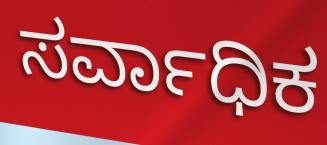
ಸರ್ವಾಧಿಕ